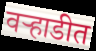
वऱ्हाडीत